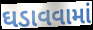
ઘડાવવામાં